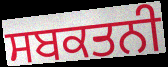
ਸਬਕਤਨੀ